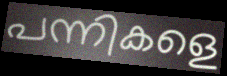
പന്നികളെ